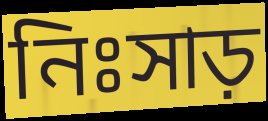
নিঃসাড়